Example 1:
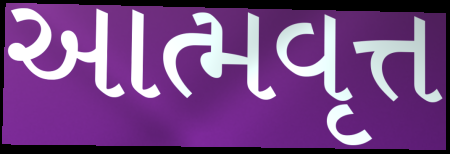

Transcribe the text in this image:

આત્મવૃત્ત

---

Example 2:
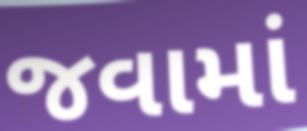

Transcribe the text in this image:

જવામાં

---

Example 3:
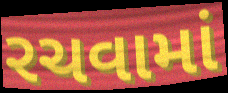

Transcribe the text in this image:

રચવામાં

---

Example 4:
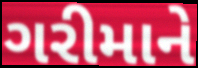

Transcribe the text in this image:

ગરીમાને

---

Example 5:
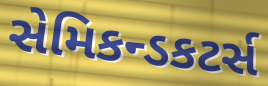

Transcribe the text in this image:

સેમિકન્ડકટર્સ